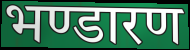
भण्डारण